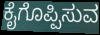
ಕೈಗೊಪ್ಪಿಸುವ